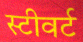
स्टीवर्ट